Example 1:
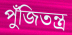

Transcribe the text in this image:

পুঁজিতন্ত্র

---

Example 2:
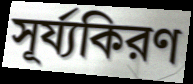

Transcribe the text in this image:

সূর্য্যকিরণ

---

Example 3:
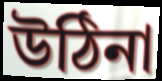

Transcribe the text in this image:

উঠিনা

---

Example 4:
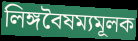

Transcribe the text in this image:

লিঙ্গবৈষম্যমূলক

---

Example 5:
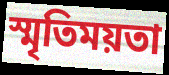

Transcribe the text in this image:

স্মৃতিময়তা